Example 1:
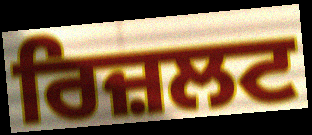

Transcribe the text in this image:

ਰਿਜ਼ਲਟ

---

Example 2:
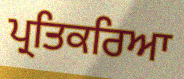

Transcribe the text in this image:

ਪ੍ਰਤਿਕਰਿਆ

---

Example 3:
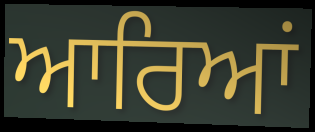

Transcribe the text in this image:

ਆਰਿਆਂ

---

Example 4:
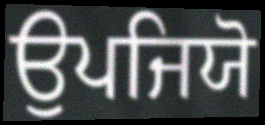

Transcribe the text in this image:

ਉਪਜਿਯੋ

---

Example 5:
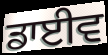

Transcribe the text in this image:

ਡਾਈਵ